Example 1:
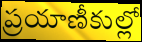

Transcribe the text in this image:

ప్రయాణీకుల్లో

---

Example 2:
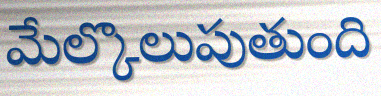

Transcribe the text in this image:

మేల్కొలుపుతుంది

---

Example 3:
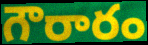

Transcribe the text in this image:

గౌరారం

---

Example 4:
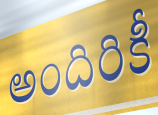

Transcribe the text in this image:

అందిరికీ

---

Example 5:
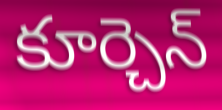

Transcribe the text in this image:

కూర్చెన్